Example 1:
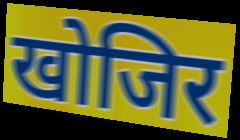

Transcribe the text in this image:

खोजिर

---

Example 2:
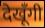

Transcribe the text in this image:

देखूँगी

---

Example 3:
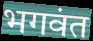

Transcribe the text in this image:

भगवंत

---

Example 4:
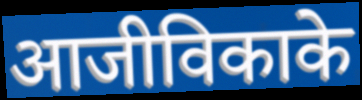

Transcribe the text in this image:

आजीविकाके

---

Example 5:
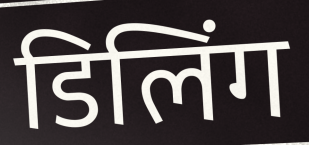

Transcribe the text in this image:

डिलिंग